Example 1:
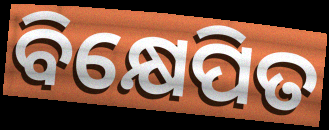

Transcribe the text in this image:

ବିକ୍ଷେପିତ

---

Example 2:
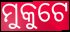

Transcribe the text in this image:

ମୁକୁଟେ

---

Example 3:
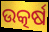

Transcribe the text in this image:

ଉତ୍କର୍ଷ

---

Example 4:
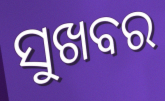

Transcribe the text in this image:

ସୁଖବର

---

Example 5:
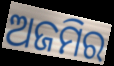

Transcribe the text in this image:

ଅଜମିର